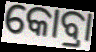
କୋବ୍ରା